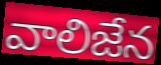
వాలిజేన